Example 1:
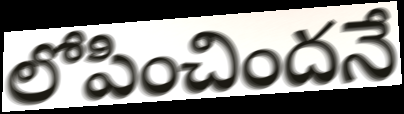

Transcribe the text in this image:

లోపించిందనే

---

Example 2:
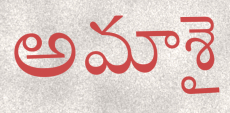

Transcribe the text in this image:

అమాశై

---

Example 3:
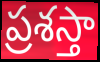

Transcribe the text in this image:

ప్రశస్తా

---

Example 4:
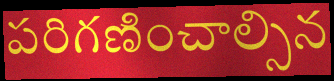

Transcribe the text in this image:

పరిగణించాల్సిన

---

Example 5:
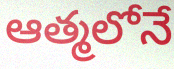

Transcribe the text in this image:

ఆత్మలోనే